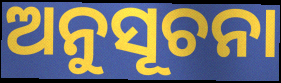
ଅନୁସୂଚନା